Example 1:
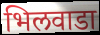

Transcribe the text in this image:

भिलवाडा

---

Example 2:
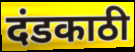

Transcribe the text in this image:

दंडकाठी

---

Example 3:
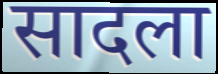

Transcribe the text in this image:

सादला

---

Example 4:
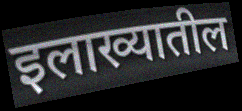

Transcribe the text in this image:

इलाख्यातील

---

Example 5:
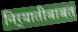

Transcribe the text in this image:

निर्यातीबाबत